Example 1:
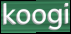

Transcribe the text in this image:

koogi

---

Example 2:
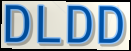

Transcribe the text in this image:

DLDD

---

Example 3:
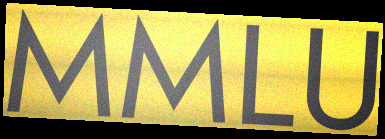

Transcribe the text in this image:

MMLU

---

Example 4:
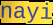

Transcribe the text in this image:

nayi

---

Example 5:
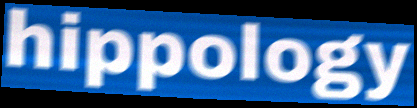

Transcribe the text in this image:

hippology